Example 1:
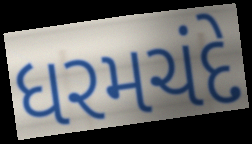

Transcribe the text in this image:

ધરમચંદે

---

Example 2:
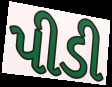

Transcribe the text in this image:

પીડી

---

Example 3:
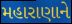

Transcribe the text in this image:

મહારાણાને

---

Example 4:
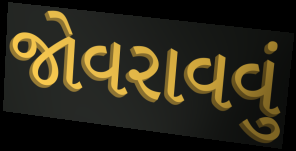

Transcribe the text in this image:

જોવરાવવું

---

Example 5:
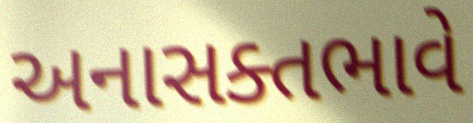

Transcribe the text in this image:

અનાસક્તભાવે